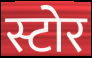
स्टोर